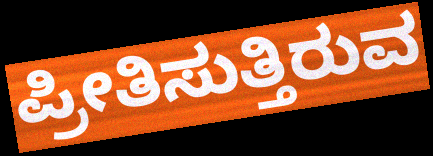
ಪ್ರೀತಿಸುತ್ತಿರುವ